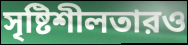
সৃষ্টিশীলতারও